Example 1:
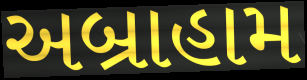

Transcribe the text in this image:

અબ્રાહામ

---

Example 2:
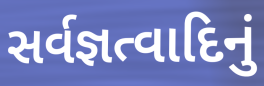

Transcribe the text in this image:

સર્વજ્ઞત્વાદિનું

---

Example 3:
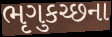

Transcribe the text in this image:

ભૃગુકચ્છના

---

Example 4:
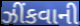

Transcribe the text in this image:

ઝીંકવાની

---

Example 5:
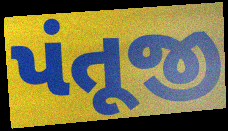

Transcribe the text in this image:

પંતૂજી